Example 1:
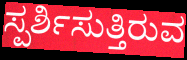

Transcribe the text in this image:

ಸ್ಪರ್ಶಿಸುತ್ತಿರುವ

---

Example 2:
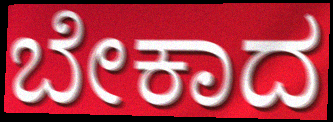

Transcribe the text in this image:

ಬೇಕಾದ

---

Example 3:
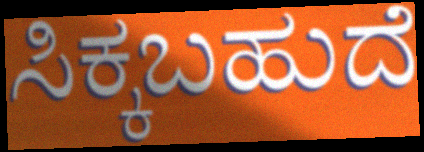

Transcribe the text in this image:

ಸಿಕ್ಕಬಹುದೆ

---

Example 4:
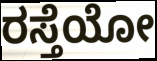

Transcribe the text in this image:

ರಸ್ತೆಯೋ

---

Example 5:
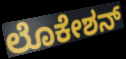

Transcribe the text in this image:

ಲೊಕೇಶನ್